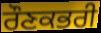
ਰੌਣਕਭਰੀ